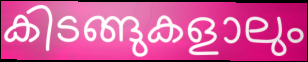
കിടങ്ങുകളാലും